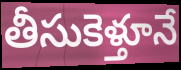
తీసుకెళ్తూనే